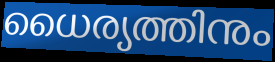
ധൈര്യത്തിനും